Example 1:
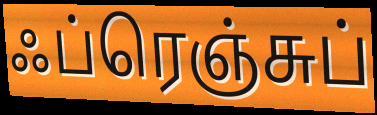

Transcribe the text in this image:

ஃப்ரெஞ்சுப்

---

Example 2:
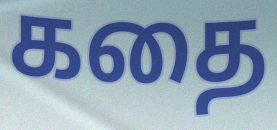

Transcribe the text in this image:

கதை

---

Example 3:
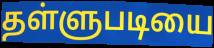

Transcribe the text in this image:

தள்ளுபடியை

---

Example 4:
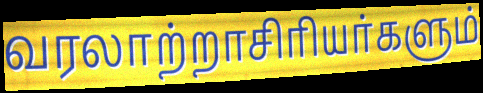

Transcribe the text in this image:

வரலாற்றாசிரியர்களும்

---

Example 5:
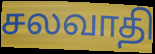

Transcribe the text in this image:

சலவாதி